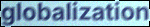
globalization